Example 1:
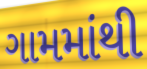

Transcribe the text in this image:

ગામમાંથી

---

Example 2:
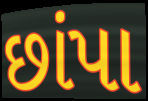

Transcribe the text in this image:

છાંપા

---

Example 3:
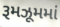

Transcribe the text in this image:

રૂમઝૂમમાં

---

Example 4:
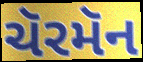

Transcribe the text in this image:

ચૅરમૅન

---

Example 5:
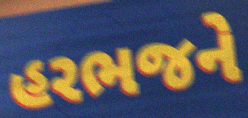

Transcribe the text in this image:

હરભજને